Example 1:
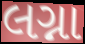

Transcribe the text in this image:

લગ્ના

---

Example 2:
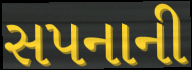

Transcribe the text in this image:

સપનાની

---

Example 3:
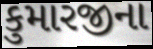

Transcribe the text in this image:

કુમારજીના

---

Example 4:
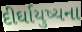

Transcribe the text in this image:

દીર્ઘાયુષ્યના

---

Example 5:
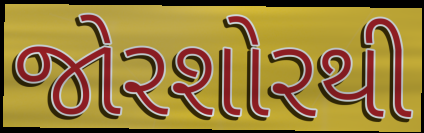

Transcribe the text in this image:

જોરશોરથી